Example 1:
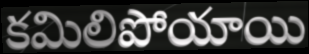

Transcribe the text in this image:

కమిలిపోయాయి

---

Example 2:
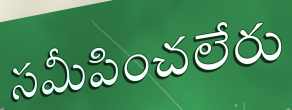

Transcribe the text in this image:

సమీపించలేరు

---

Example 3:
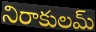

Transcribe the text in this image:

నిరాకులమ్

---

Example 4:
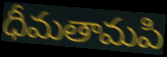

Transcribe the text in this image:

ధీమతామపి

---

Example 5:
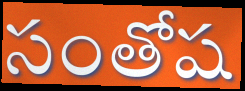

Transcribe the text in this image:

సంతోష